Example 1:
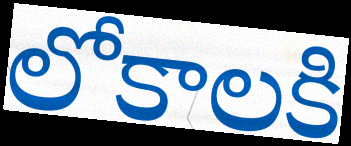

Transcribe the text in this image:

లోకాలకి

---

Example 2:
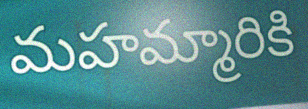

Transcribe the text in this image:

మహమ్మారికి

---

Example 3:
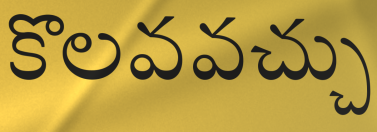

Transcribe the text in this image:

కొలవవచ్చు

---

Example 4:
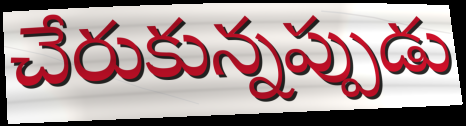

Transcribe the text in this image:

చేరుకున్నప్పుడు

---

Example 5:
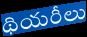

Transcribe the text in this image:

థియరీలు